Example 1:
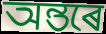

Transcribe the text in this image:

অন্তৰে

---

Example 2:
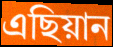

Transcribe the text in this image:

এছিয়ান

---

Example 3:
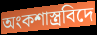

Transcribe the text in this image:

অংকশাস্ত্ৰবিদে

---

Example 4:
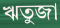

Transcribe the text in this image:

ঋতুজা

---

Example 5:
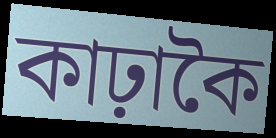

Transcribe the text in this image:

কাঢ়াকৈ